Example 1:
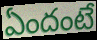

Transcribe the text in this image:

ఏందంటే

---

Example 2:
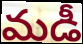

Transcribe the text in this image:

మడీ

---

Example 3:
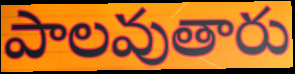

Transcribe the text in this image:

పాలవుతారు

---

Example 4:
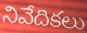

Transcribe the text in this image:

నివేదికలు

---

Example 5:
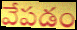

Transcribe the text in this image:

వేపడం